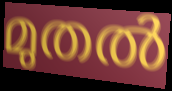
മുതൽ